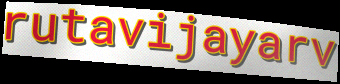
rutavijayarv